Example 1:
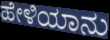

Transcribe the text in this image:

ಹೇಳಿಯಾನು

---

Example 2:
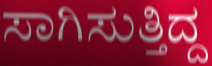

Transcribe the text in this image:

ಸಾಗಿಸುತ್ತಿದ್ದ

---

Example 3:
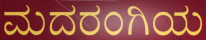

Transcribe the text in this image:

ಮದರಂಗಿಯ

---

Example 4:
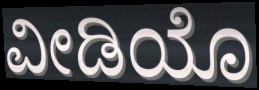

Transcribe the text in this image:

ವೀಡಿಯೊ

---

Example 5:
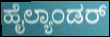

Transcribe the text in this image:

ಹೈಲ್ಯಾಂಡರ್